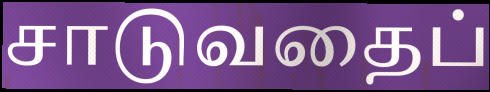
சாடுவதைப்